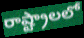
రాష్ట్రాలలో